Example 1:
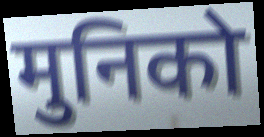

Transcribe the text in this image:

मुनिको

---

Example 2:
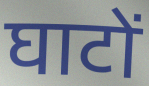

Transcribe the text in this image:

घाटों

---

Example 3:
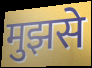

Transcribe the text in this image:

मुझसे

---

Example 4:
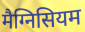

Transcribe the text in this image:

मैग्निसियम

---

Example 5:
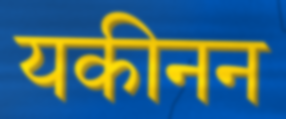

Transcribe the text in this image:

यकीनन